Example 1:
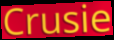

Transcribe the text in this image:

Crusie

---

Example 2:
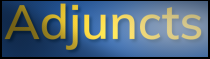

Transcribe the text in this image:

Adjuncts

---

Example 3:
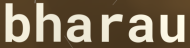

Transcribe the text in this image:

bharau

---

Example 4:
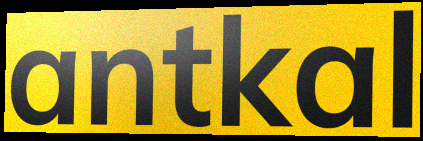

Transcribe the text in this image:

antkal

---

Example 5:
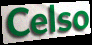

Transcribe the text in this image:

Celso